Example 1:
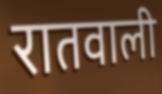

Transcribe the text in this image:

रातवाली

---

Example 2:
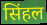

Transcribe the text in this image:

सिंहल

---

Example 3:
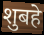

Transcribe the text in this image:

शुबहे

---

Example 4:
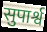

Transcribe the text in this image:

सुपार्श्व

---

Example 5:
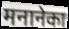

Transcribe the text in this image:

मनानेका